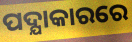
ପଦ୍ଯାକାରରେ